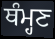
ਥੰਮ੍ਹਣ